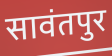
सावंतपुर